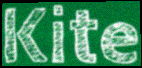
Kite